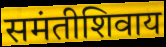
समंतीशिवाय